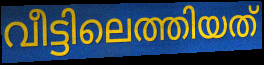
വീട്ടിലെത്തിയത്